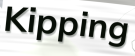
Kipping